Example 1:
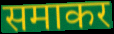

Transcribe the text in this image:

समाकर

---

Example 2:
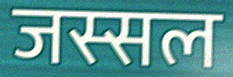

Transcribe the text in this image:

जस्सल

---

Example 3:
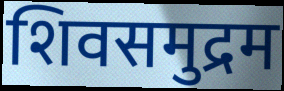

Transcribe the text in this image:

शिवसमुद्रम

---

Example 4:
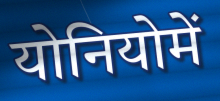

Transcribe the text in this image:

योनियोमें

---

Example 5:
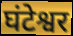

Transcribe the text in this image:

घंटेश्वर